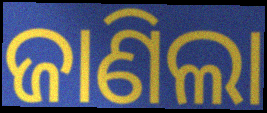
ଜାଣିଲା